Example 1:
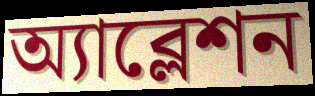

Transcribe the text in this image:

অ্যাব্লেশন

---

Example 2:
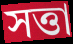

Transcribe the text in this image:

সত্তা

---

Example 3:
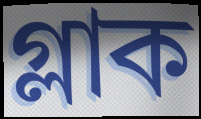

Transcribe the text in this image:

গ্লাক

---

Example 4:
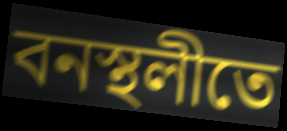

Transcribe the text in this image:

বনস্থলীতে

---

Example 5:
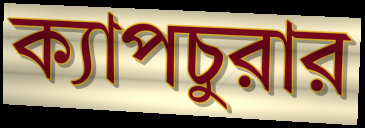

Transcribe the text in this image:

ক্যাপচুরার